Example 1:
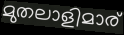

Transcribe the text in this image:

മുതലാളിമാര്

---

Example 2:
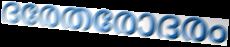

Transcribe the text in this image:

ദരേതരോദരം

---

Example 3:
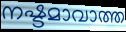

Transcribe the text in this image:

നഷ്ടമാവാത്ത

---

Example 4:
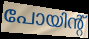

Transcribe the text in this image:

പോയിന്റ്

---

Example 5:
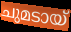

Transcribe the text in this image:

ചുമടായ്